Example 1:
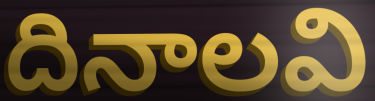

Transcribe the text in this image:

దినాలవి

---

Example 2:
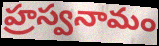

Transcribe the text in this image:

హ్రస్వనామం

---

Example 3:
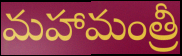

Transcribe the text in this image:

మహామంత్రీ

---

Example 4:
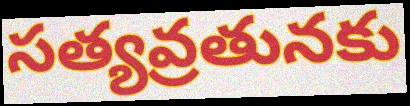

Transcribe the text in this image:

సత్యవ్రతునకు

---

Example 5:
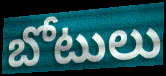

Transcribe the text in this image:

బోటులు